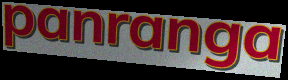
panranga